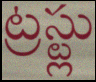
ట్రస్ట్లు